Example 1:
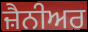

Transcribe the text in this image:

ਜ਼ੈਨੀਅਰ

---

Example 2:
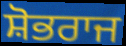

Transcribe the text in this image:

ਸ਼ੋਭਰਾਜ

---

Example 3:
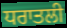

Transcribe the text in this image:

ਧਰਾਤਲੀ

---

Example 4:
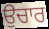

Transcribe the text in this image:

ਉਚਾਰ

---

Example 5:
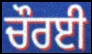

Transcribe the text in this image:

ਚੌਰਈ